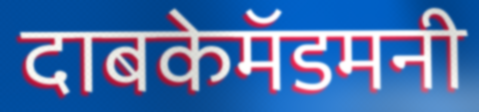
दाबकेमॅडमनी